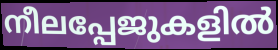
നീലപ്പേജുകളിൽ